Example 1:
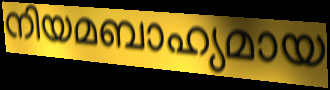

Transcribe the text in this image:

നിയമബാഹ്യമായ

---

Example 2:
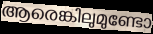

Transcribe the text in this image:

ആരെങ്കിലുമുണ്ടോ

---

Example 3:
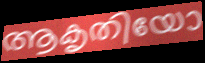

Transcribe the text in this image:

ആകൃതിയോ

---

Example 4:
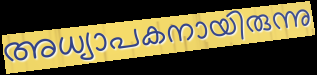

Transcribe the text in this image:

അധ്യാപകനായിരുന്നു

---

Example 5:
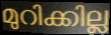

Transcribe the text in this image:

മുറിക്കില്ല